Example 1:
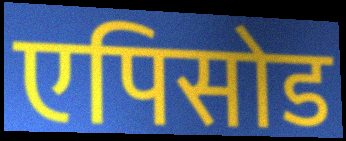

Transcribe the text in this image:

एपिसोड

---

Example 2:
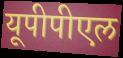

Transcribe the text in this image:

यूपीपीएल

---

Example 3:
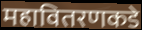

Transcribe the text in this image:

महावितरणकडे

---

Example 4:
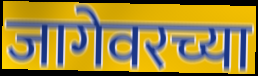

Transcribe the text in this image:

जागेवरच्या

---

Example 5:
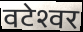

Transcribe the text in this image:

वटेश्वर